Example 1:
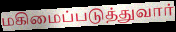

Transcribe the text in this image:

மகிமைப்படுத்துவார்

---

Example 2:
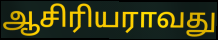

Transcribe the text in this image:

ஆசிரியராவது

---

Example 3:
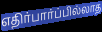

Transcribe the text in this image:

எதிர்பார்ப்பில்லாத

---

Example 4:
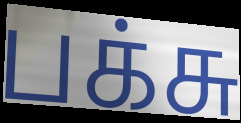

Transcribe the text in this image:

பக்சு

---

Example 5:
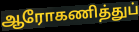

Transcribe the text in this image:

ஆரோகணித்துப்